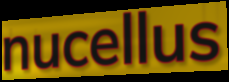
nucellus